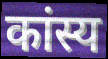
कांस्य